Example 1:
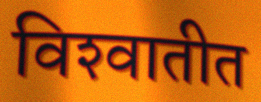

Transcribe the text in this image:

विश्वातीत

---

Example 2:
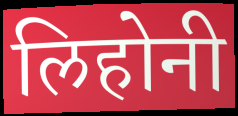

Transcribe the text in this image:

लिहोनी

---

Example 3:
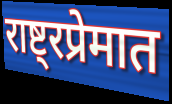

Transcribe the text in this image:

राष्ट्रप्रेमात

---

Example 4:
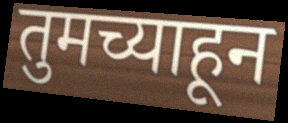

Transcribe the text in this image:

तुमच्याहून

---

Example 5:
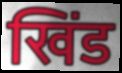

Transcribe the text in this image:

खिंड